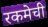
रकमेची